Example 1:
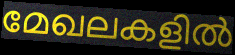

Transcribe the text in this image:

മേഖലകളിൽ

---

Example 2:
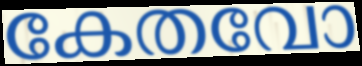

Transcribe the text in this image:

കേതവോ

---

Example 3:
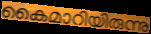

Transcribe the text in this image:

കൈമാറിയിരുന്നു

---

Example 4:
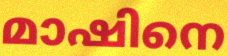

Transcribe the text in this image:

മാഷിനെ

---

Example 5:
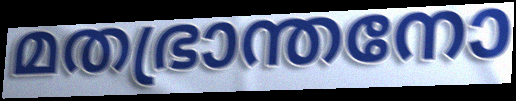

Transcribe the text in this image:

മതഭ്രാന്തനോ